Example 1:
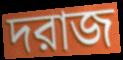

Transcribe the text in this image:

দরাজ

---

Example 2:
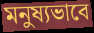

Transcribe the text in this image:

মনুষ্যভাবে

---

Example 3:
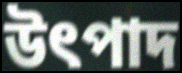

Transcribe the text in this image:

উৎপাদ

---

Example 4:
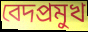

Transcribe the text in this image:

বেদপ্রমুখ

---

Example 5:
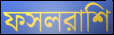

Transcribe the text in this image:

ফসলরাশি